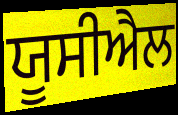
ਯੂਸੀਐਲ